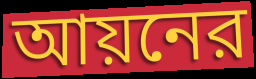
আয়নের